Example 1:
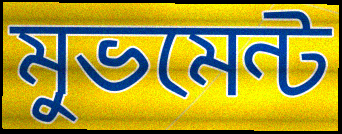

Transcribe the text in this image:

মুভমেন্ট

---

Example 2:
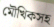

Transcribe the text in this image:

মৌখিকসহ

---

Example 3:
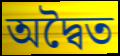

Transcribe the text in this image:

অদ্বৈত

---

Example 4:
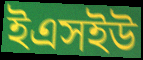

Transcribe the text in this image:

ইএসইউ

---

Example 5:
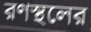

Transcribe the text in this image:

রণস্থলের